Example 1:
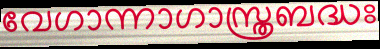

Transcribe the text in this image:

വേഗാന്നാഗാസ്ത്രബദ്ധഃ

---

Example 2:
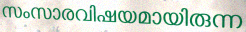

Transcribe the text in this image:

സംസാരവിഷയമായിരുന്ന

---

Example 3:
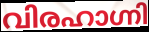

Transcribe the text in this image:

വിരഹാഗ്നി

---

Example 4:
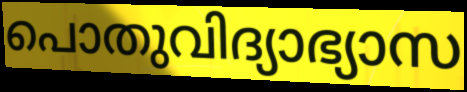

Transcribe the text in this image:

പൊതുവിദ്യാഭ്യാസ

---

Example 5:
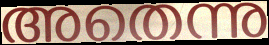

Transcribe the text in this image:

അതെന്നു